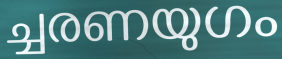
ച്ചരണയുഗം